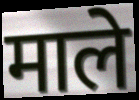
माले